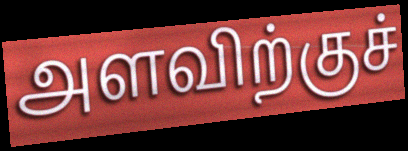
அளவிற்குச்